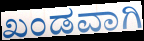
ಖಂಡವಾಗಿ